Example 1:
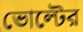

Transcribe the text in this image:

ভোল্টের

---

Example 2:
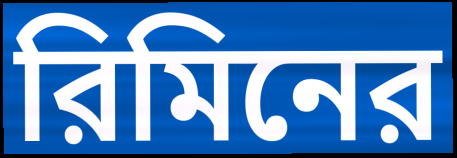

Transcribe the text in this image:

রিমিনের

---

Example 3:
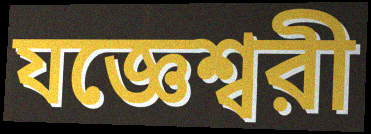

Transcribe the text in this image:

যজ্ঞেশ্বরী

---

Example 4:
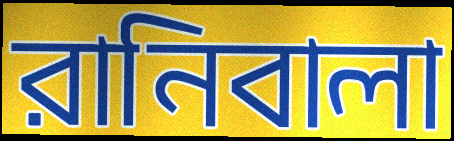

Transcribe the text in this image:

রানিবালা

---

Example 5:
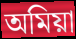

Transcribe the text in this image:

অমিয়া